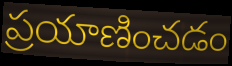
ప్రయాణించడం